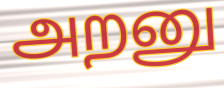
அறனு